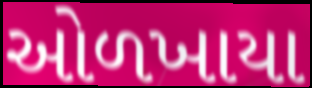
ઓળખાયા